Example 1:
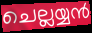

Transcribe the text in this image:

ചെല്ലയ്യൻ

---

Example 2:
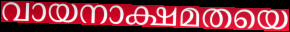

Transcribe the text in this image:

വായനാക്ഷമതയെ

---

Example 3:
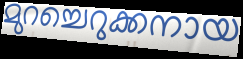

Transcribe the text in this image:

മുറച്ചെറുക്കനായ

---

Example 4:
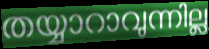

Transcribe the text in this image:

തയ്യാറാവുന്നില്ല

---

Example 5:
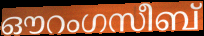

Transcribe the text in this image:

ഔറംഗസീബ്